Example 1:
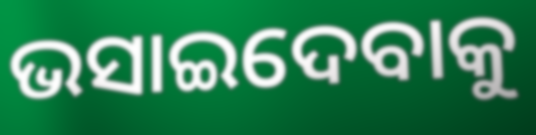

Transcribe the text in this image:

ଭସାଇଦେବାକୁ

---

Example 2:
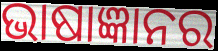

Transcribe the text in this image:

ଭାଷାଜ୍ଞାନର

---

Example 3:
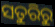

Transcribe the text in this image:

ସତୁରିରୁ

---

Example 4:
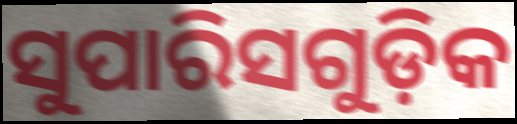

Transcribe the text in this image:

ସୁପାରିସଗୁଡ଼ିକ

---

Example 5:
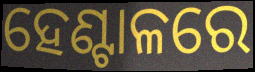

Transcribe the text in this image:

ହେଣ୍ଟାଳରେ